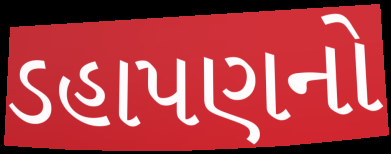
ડહાપણનો